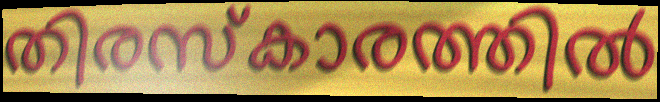
തിരസ്കാരത്തിൽ